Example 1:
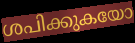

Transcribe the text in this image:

ശപിക്കുകയോ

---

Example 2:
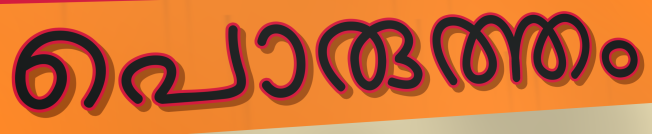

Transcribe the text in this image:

പൊരുത്തം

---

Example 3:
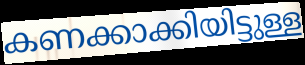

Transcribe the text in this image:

കണക്കാക്കിയിട്ടുള്ള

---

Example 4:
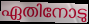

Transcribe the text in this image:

ഏതിനോടു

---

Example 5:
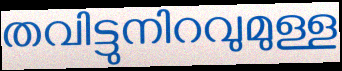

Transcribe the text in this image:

തവിട്ടുനിറവുമുള്ള